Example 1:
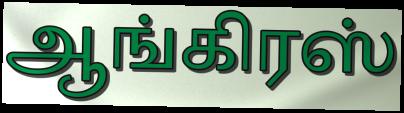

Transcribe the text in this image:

ஆங்கிரஸ்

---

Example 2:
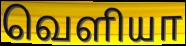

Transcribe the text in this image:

வெளியா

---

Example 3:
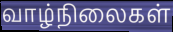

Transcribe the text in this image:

வாழ்நிலைகள்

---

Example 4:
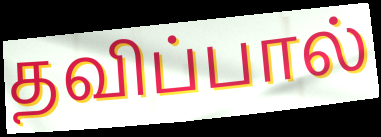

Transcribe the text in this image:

தவிப்பால்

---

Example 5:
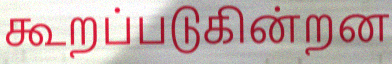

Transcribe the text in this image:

கூறப்படுகின்றன